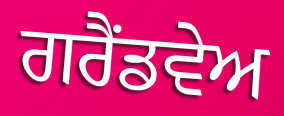
ਗਰੈਂਡਵੇਅ